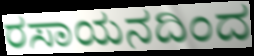
ರಸಾಯನದಿಂದ